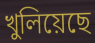
খুলিয়েছে